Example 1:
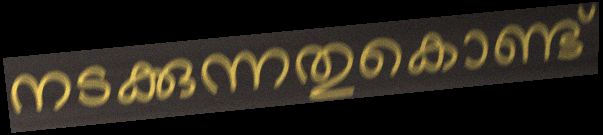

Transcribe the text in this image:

നടക്കുന്നതുകൊണ്ട്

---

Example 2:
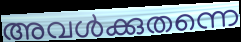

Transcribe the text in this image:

അവൾക്കുതന്നെ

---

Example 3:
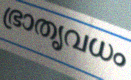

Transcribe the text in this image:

ഭ്രാതൃവധം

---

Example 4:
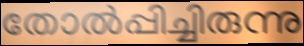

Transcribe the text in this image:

തോൽപ്പിച്ചിരുന്നു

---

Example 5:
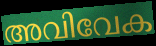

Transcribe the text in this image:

അവിവേക